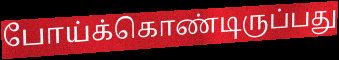
போய்க்கொண்டிருப்பது